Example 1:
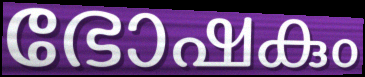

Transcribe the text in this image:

ഭോഷകും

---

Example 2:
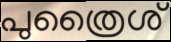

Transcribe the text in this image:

പുത്രൈശ്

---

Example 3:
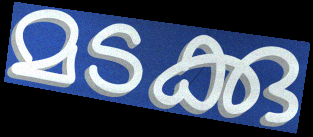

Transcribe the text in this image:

മടക്കു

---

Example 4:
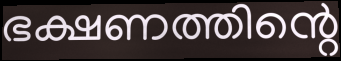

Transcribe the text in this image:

ഭക്ഷണത്തിന്റെ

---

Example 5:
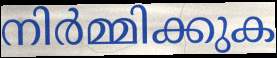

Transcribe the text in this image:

നിർമ്മിക്കുക